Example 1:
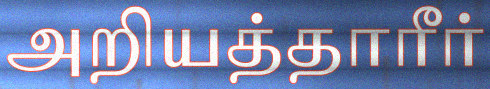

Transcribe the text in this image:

அறியத்தாரீர்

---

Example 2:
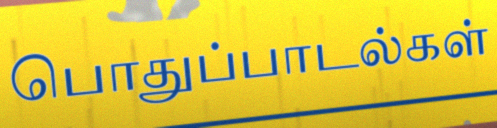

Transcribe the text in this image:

பொதுப்பாடல்கள்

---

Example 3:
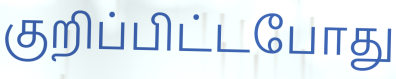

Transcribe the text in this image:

குறிப்பிட்டபோது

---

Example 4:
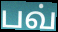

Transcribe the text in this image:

பவ்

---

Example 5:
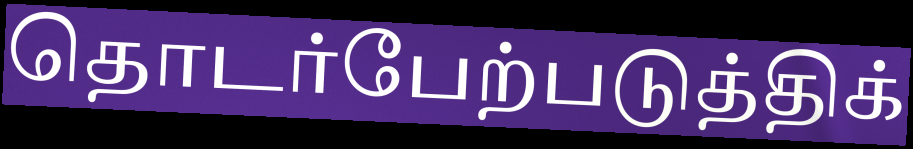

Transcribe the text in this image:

தொடர்பேற்படுத்திக்